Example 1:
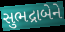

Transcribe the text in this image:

સુભદ્રાબેને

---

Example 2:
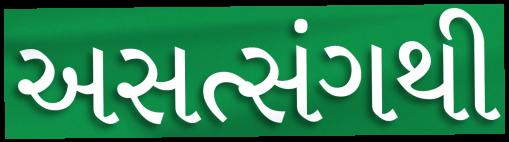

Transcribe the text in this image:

અસત્સંગથી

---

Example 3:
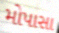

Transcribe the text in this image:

મોપાસા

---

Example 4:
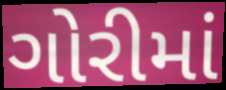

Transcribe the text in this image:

ગોરીમાં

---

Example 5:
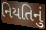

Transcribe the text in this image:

નિયતિનું